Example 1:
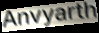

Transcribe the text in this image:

Anvyarth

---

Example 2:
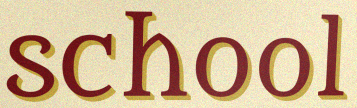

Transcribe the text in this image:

school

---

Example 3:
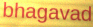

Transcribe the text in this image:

bhagavad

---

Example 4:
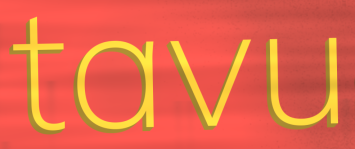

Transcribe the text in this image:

tavu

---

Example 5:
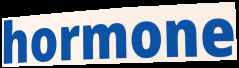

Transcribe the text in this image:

hormone